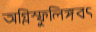
অগ্নিস্ফুলিঙ্গবৎ